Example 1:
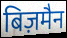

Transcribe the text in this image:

बिज़मैन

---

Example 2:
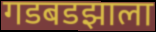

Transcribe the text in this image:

गडबडझाला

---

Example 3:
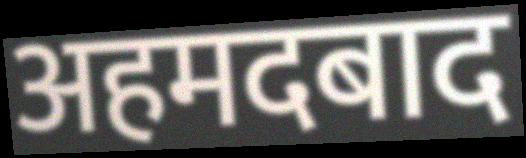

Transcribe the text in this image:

अहमदबाद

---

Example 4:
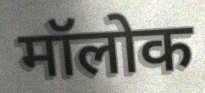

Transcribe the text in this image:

मॉलोक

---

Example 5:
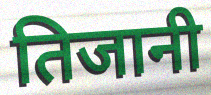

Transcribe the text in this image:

तिजानी